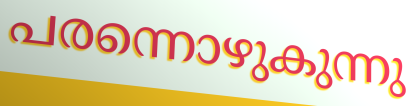
പരന്നൊഴുകുന്നു